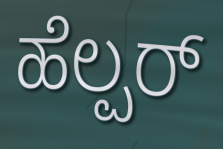
ಹೆಲ್ಪರ್